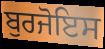
ਬੁਰਜੋਇਸ